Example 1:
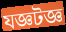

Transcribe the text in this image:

যজ্ঞটজ্ঞ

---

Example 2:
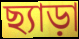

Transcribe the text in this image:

ছ্যাড়া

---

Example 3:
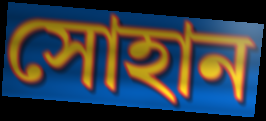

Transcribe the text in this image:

সোহান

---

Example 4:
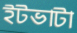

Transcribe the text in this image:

ইটভাটা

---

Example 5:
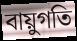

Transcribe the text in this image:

বায়ুগতি